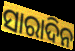
ସାରାଦିନ